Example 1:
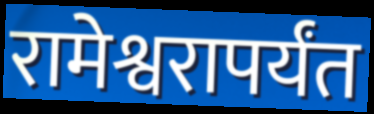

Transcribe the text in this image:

रामेश्वरापर्यंत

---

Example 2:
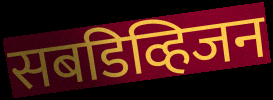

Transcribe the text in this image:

सबडिव्हिजन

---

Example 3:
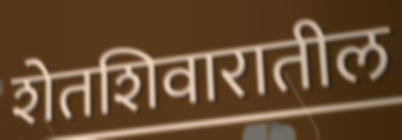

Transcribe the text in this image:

शेतशिवारातील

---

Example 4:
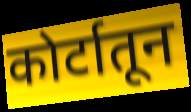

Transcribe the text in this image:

कोर्टातून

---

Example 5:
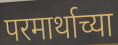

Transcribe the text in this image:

परमार्थाच्या